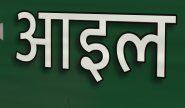
आइल